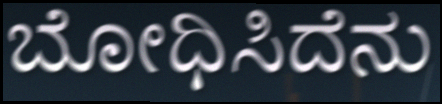
ಬೋಧಿಸಿದೆನು